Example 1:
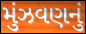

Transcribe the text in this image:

મુંઝવણનું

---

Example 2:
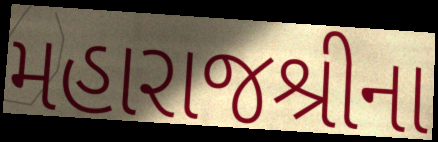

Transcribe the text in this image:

મહારાજશ્રીના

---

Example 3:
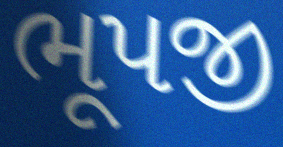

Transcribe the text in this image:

ભૂપજી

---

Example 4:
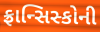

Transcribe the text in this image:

ફ્રાન્સિસ્કોની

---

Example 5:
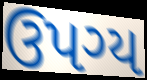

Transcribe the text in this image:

ઉપગ્ય